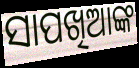
ସାପଖିଆଙ୍କ